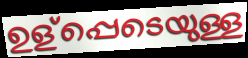
ഉള്പ്പെടെയുള്ള